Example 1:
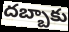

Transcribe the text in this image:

దబ్బాకు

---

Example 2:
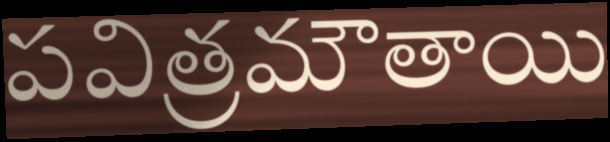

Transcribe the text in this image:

పవిత్రమౌతాయి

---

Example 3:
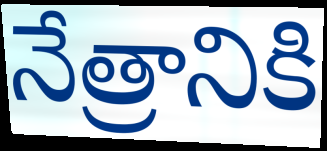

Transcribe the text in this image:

నేత్రానికి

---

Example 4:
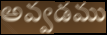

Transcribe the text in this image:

అవ్వడము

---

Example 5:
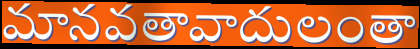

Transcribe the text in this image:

మానవతావాదులంతా